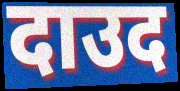
दाउद